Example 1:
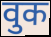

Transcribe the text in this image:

वुक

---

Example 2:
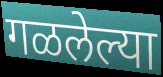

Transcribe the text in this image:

गळलेल्या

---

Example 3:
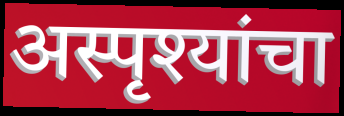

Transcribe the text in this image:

अस्पृश्यांचा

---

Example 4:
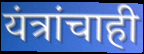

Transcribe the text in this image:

यंत्रांचाही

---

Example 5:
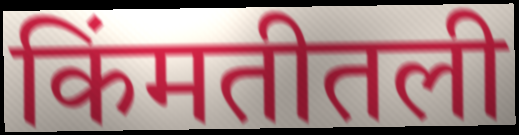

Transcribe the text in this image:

किंमतीतली